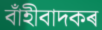
বাঁহীবাদকৰ